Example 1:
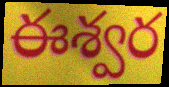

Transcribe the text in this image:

ఈశ్వర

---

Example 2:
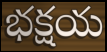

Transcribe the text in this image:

భక్షయ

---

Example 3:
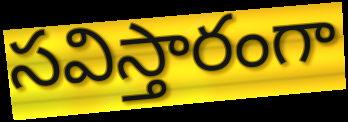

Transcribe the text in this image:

సవిస్తారంగా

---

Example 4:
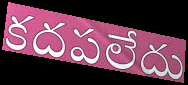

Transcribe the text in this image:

కదపలేదు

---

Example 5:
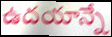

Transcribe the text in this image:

ఉదయాన్నే